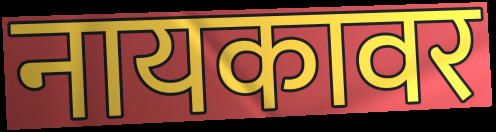
नायकावर